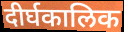
दीर्घकालिक